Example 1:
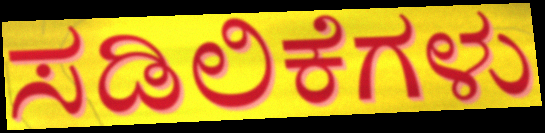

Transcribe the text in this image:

ಸಡಿಲಿಕೆಗಳು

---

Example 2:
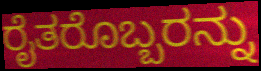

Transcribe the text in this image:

ರೈತರೊಬ್ಬರನ್ನು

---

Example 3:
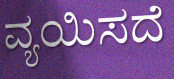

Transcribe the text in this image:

ವ್ಯಯಿಸದೆ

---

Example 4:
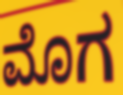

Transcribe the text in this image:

ಮೊಗ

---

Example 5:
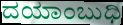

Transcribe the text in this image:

ದಯಾಂಬುಧಿ